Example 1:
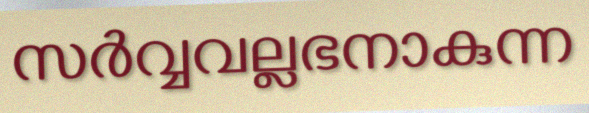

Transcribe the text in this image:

സർവ്വവല്ലഭനാകുന്ന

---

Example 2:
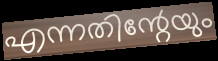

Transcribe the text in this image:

എന്നതിന്റേയും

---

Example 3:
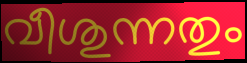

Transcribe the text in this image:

വീശുന്നതും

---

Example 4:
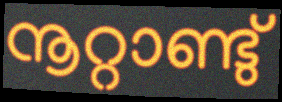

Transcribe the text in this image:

നൂറ്റാണ്ടു്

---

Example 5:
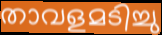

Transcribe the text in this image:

താവളമടിച്ചു